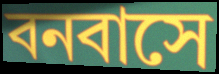
বনবাসে